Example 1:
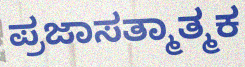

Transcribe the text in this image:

ಪ್ರಜಾಸತ್ಮಾತ್ಮಕ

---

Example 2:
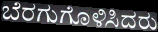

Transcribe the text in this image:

ಬೆರಗುಗೊಳಿಸಿದರು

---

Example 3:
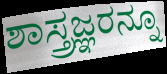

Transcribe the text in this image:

ಶಾಸ್ತ್ರಜ್ಞರನ್ನೂ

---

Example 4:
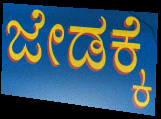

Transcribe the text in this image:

ಜೇಡಕ್ಕೆ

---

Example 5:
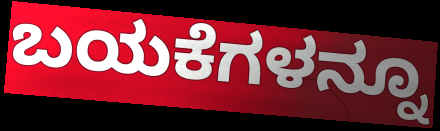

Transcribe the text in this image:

ಬಯಕೆಗಳನ್ನೂ